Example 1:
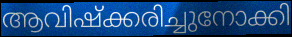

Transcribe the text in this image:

ആവിഷ്ക്കരിച്ചുനോക്കി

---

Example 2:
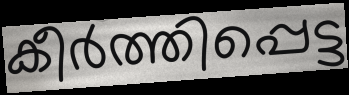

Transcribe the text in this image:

കീർത്തിപ്പെട്ട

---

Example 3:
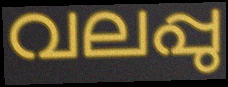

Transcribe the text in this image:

വലപ്പു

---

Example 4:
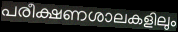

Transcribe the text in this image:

പരീക്ഷണശാലകളിലും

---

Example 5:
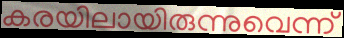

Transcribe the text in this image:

കരയിലായിരുന്നുവെന്ന്